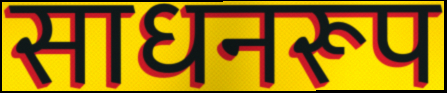
साधनरूप